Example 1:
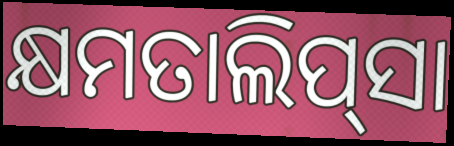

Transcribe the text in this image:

କ୍ଷମତାଲିପ୍‍ସା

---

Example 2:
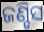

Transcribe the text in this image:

ଜଣ୍ଡିସ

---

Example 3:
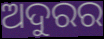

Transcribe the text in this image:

ଅଦୁରର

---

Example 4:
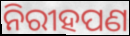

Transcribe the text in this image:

ନିରୀହପଣ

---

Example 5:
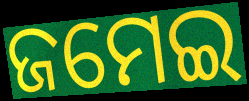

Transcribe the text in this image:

ଜମେଇ